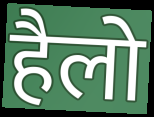
हैलो